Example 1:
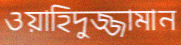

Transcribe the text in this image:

ওয়াহিদুজ্জামান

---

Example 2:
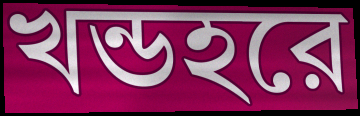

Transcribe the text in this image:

খন্ডহরে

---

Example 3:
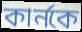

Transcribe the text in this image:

কার্নকে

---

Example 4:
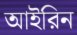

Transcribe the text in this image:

আইরিন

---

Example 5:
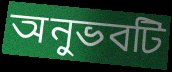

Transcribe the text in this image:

অনুভবটি